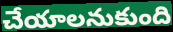
చేయాలనుకుంది